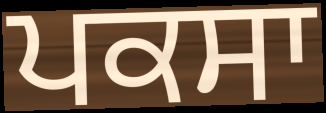
ਪਕਸਾ